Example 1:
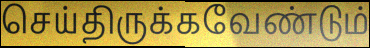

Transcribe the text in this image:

செய்திருக்கவேண்டும்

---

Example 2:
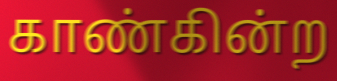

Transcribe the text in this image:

காண்கின்ற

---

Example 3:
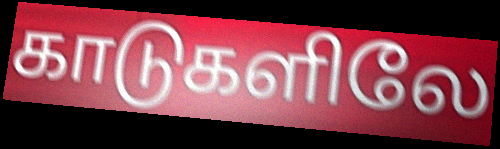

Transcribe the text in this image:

காடுகளிலே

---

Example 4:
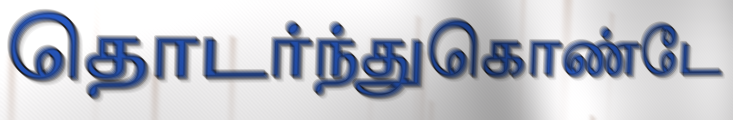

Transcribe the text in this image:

தொடர்ந்துகொண்டே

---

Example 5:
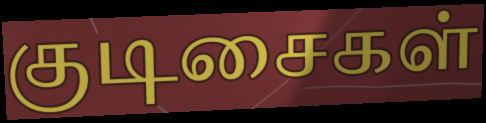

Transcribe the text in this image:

குடிசைகள்